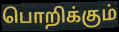
பொறிக்கும்